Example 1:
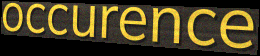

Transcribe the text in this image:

occurence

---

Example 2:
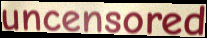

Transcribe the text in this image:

uncensored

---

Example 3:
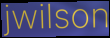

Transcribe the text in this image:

jwilson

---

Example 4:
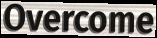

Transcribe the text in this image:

Overcome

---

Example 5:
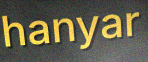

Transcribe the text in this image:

hanyar